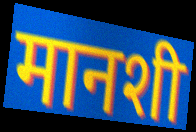
मानशी